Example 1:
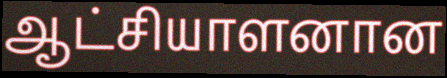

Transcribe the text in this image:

ஆட்சியாளனான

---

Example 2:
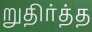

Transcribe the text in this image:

றுதிர்த்த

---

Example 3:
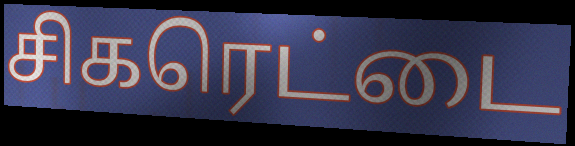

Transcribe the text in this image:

சிகரெட்டை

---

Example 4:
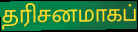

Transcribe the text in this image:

தரிசனமாகப்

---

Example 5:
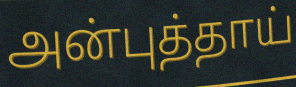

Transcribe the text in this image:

அன்புத்தாய்